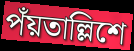
পঁয়তাল্লিশে